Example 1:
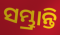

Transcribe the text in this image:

ସମ୍ଭ୍ରାନ୍ତି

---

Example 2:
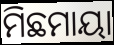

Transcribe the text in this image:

ମିଛମାୟା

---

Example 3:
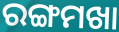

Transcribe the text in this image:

ରଙ୍ଗମଖା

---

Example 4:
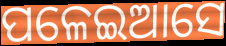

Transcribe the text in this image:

ପଳେଇଆସେ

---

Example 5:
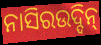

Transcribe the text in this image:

ନାସିରଉଦ୍ଦିନ୍